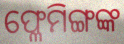
ଫ୍ଳେମିଙ୍ଗଙ୍କ